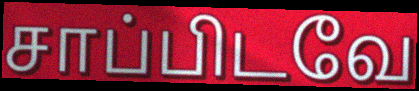
சாப்பிடவே